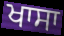
ਖਾਸਾ